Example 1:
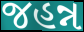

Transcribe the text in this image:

જહન્ન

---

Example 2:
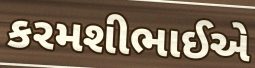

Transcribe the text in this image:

કરમશીભાઈએ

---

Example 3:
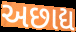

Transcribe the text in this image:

અછાદ્ય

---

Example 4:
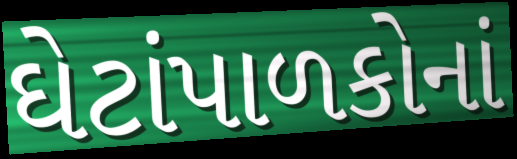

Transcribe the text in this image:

ઘેટાંપાળકોનાં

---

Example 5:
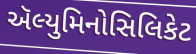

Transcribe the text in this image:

ઍલ્યુમિનોસિલિકેટ